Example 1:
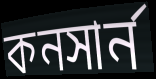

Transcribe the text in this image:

কনসার্ন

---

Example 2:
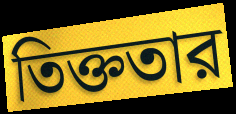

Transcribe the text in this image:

তিক্ততার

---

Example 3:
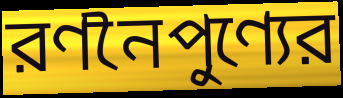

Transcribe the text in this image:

রণনৈপুণ্যের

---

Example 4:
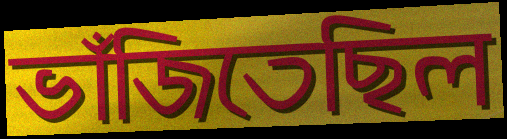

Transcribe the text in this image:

ভাঁজিতেছিল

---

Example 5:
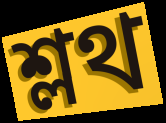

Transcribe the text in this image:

শ্লথ